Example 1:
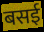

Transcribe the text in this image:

बसई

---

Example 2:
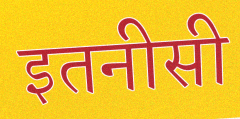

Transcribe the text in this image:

इतनीसी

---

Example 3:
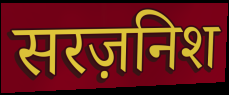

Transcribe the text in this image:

सरज़निश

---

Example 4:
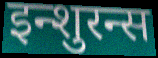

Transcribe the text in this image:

इन्शुरन्स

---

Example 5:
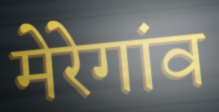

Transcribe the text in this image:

मेरेगांव